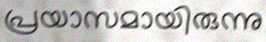
പ്രയാസമായിരുന്നു